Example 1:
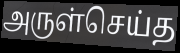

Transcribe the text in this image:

அருள்செய்த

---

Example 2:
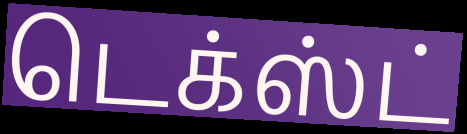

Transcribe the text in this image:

டெக்ஸ்ட்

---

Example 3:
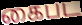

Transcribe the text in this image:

கைபட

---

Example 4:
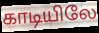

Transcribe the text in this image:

காடியிலே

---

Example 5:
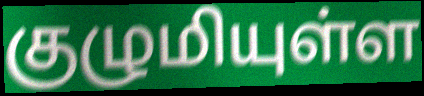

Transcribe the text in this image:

குழுமியுள்ள